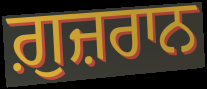
ਗ਼ੁਜ਼ਰਾਨ